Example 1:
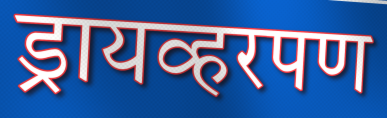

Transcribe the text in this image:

ड्रायव्हरपण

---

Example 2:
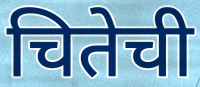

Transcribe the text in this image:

चितेची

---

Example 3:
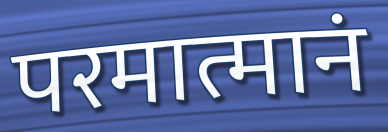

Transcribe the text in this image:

परमात्मानं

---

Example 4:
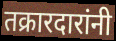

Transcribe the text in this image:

तक्रारदारांनी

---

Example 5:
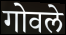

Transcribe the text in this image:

गोवले